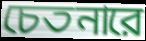
চেতনারে